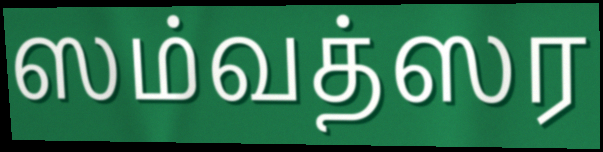
ஸம்வத்ஸர